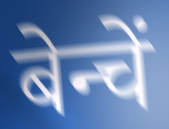
बेन्चें